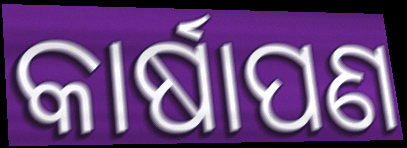
କାର୍ଷାପଣ